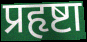
प्रहृष्टा